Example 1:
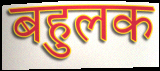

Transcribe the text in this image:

बहुलक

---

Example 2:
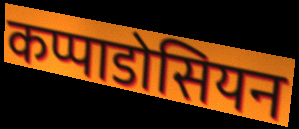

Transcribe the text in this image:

कप्पाडोसियन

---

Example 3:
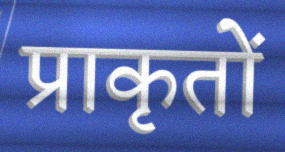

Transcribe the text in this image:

प्राकृतों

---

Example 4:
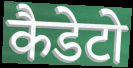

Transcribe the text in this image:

कैडेटो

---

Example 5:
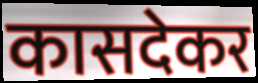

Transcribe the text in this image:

कासदेकर